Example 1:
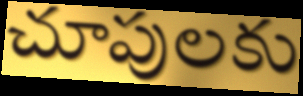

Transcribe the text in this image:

చూపులకు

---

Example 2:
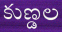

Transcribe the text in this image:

కుణ్డల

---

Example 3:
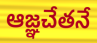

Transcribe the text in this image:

ఆజ్ఞచేతనే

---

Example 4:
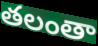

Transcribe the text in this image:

తలంతా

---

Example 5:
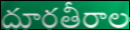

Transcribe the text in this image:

దూరతీరాల